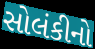
સોલંકીનો